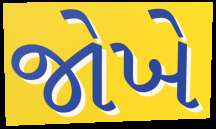
જોખે